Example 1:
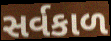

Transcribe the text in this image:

સર્વકાળ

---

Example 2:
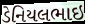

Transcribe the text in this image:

ડેનિયલભાઇ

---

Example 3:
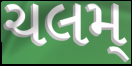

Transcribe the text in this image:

ચલમ્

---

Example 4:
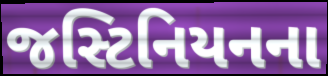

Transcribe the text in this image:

જસ્ટિનિયનના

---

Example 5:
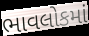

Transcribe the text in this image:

ભાવલોકમાં